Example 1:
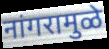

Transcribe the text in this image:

नांगरामुळे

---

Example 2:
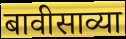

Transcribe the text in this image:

बावीसाव्या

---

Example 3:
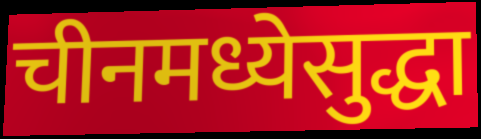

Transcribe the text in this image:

चीनमध्येसुद्धा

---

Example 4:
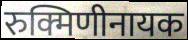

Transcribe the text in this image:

रुक्मिणीनायक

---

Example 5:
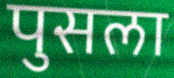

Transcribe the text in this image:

पुसला